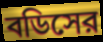
বডিসের